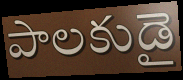
పాలకుడై